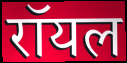
रॉयल